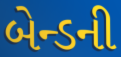
બેન્ડની